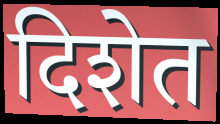
दिशेत